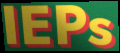
IEPs